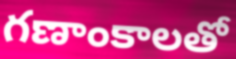
గణాంకాలతో